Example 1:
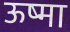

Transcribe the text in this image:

ऊष्मा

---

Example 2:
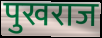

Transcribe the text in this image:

पुखराज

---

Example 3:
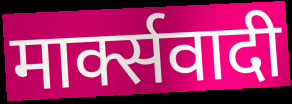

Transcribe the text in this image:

मार्क्सवादी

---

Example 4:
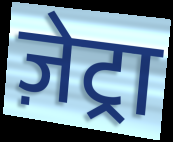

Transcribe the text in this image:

ज़ेट्रा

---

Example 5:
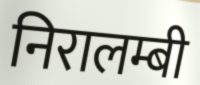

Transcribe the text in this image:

निरालम्बी